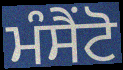
ਮੰਸੈਂਟੋ